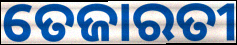
ତେଜାରତୀ